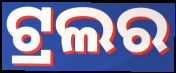
ଟ୍ରଲର